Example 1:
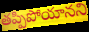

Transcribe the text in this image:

తప్పిపోయానని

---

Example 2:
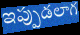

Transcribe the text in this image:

ఇప్పుడలాగ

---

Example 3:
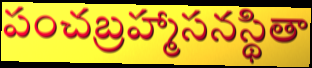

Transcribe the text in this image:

పంచబ్రహ్మాసనస్థితా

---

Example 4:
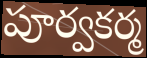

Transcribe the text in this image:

పూర్వకర్మ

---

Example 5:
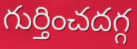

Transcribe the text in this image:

గుర్తించదగ్గ